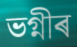
ভগ্নীৰ